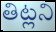
తిట్లని